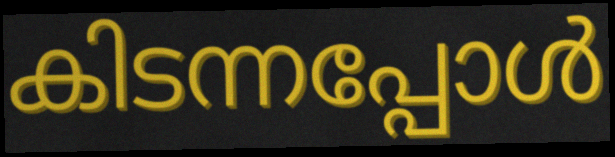
കിടന്നപ്പോൾ